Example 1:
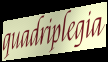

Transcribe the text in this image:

quadriplegia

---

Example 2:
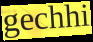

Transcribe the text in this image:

gechhi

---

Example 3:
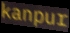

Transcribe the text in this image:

kanpur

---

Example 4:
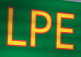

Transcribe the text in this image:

LPE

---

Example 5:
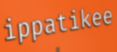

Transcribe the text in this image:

ippatikee